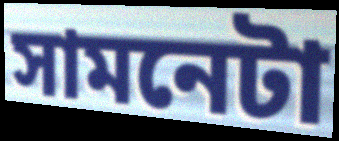
সামনেটা